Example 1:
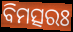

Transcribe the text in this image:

ବିମତ୍ସରଃ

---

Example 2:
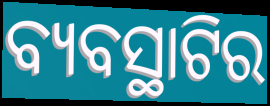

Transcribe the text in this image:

ବ୍ୟବସ୍ଥାଟିର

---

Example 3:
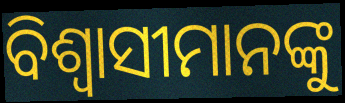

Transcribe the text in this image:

ବିଶ୍ୱାସୀମାନଙ୍କୁ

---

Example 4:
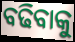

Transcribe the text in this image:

ବଢିବାକୁ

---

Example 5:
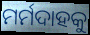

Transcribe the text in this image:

ମର୍ମଦାହକୁ